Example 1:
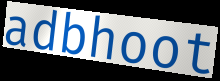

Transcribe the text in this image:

adbhoot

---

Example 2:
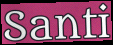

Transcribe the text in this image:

Santi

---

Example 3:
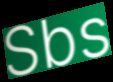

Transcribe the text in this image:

Sbs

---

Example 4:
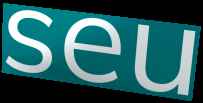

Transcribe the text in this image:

seu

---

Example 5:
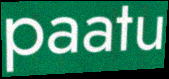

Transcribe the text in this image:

paatu